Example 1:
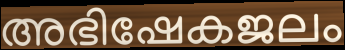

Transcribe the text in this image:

അഭിഷേകജലം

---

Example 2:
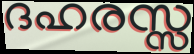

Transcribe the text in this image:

ദഹരസ്സ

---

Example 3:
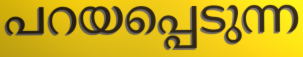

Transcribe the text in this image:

പറയപ്പെടുന്ന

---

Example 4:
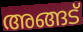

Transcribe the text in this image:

അങ്ങട്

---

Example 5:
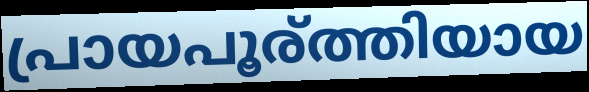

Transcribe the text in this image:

പ്രായപൂര്ത്തിയായ